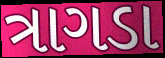
ત્રાગડા